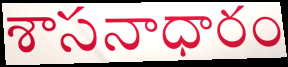
శాసనాధారం